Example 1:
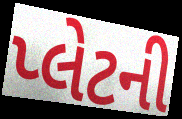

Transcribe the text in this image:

પ્લેટની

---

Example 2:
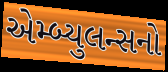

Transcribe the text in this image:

એમ્બ્યુલન્સનો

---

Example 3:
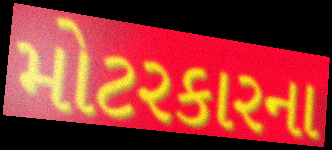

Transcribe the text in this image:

મોટરકારના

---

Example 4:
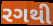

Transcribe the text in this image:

રગથી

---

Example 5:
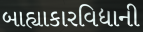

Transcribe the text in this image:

બાહ્યાકારવિદ્યાની